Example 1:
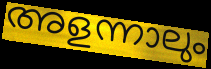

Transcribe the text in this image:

അളന്നാലും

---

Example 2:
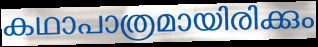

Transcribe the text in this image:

കഥാപാത്രമായിരിക്കും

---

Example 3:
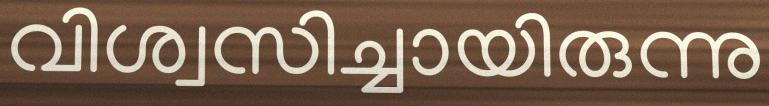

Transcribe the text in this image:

വിശ്വസിച്ചായിരുന്നു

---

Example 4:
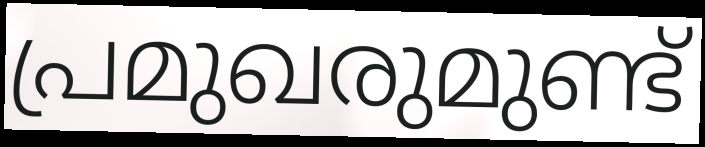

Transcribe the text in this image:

പ്രമുഖരുമുണ്ട്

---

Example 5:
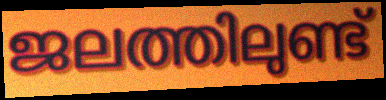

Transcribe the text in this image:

ജലത്തിലുണ്ട്